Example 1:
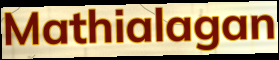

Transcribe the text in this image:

Mathialagan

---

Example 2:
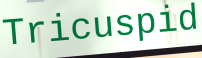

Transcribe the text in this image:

Tricuspid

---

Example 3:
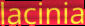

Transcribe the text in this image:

lacinia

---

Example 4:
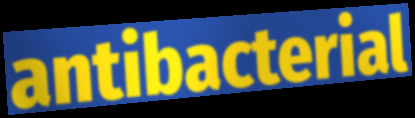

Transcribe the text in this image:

antibacterial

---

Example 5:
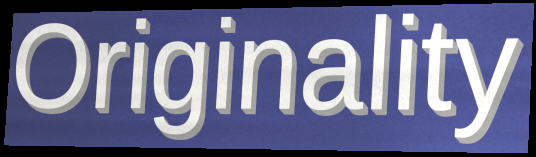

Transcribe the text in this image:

Originality